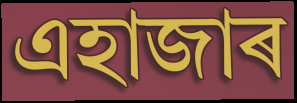
এহাজাৰ